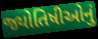
જ્યોતિષીઓનું